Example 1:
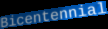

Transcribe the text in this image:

Bicentennial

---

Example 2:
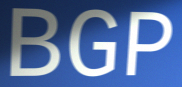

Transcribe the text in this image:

BGP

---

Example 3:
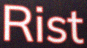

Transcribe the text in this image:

Rist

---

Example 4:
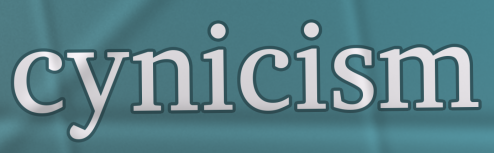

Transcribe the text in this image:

cynicism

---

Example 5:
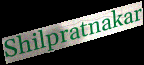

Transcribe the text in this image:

Shilpratnakar